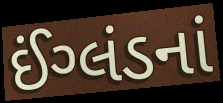
ઈંગ્લંડનાં